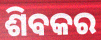
ଶିବକର